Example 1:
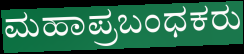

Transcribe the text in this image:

ಮಹಾಪ್ರಬಂಧಕರು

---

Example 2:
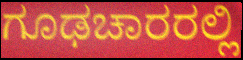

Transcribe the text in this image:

ಗೂಢಚಾರರಲ್ಲಿ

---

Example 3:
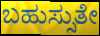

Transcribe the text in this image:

ಬಹುಸ್ಸುತೇ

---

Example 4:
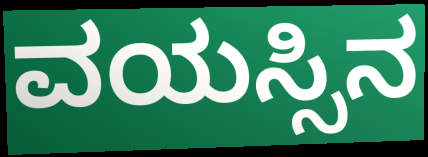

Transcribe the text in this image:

ವಯಸ್ಸಿನ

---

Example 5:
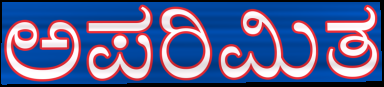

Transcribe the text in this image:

ಅಪರಿಮಿತ